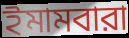
ইমামবারা